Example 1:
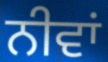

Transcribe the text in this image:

ਨੀਵਾਂ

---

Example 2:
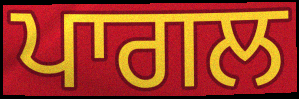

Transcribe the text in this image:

ਪਾਗਲ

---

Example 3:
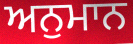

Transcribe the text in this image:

ਅਨੁਮਾਨ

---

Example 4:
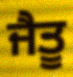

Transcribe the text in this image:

ਜੈਤੂ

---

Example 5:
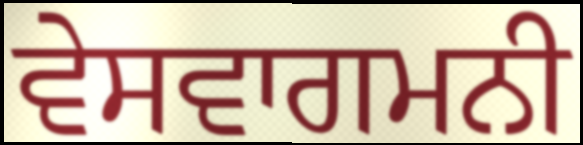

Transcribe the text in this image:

ਵੇਸਵਾਗਮਨੀ